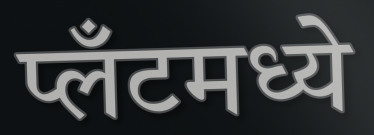
प्लँटमध्ये